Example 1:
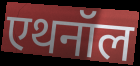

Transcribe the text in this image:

एथनॉल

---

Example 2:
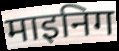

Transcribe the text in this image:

माइनिग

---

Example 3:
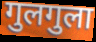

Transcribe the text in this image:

गुलगुला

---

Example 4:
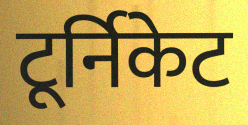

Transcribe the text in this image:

टूर्निकेट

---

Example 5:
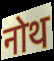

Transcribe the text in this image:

नोथ